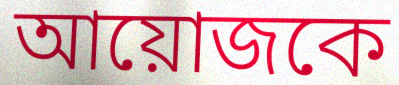
আয়োজকে